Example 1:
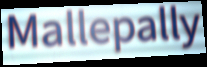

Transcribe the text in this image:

Mallepally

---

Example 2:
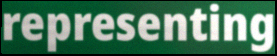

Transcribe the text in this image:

representing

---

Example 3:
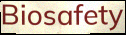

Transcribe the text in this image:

Biosafety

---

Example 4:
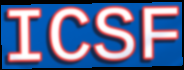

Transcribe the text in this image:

ICSF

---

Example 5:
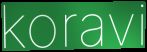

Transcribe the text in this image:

koravi